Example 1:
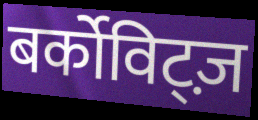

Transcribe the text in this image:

बर्कोविट्ज़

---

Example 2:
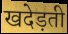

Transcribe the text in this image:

खदेड़ती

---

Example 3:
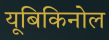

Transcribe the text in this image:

यूबिकिनोल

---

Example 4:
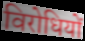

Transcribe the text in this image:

विरोधियों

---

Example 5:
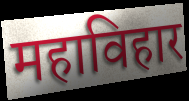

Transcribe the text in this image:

महाविहार